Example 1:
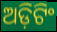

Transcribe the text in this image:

ଅଡ଼ିଟିଂ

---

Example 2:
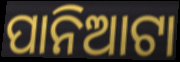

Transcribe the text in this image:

ପାନିଆଟା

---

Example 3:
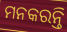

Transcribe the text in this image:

ମନକରନ୍ତି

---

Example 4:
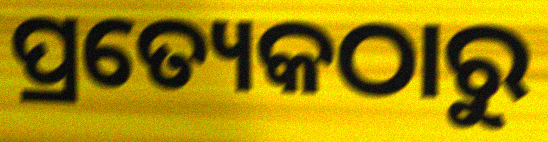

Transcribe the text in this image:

ପ୍ରତ୍ୟେକଠାରୁ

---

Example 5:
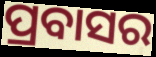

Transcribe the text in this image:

ପ୍ରବାସର